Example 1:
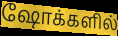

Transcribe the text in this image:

ஷோக்களில்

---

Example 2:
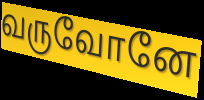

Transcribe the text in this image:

வருவோனே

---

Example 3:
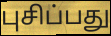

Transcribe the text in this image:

புசிப்பது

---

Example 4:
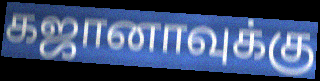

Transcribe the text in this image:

கஜானாவுக்கு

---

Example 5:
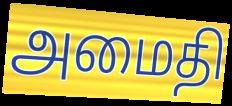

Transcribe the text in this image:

அமைதி